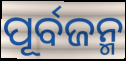
ପୂର୍ବଜନ୍ମ